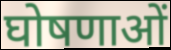
घोषणाओं